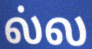
ல்ல